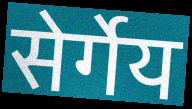
सेर्गेय